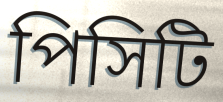
পিসিটি